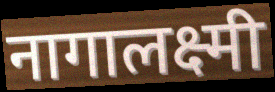
नागालक्ष्मी